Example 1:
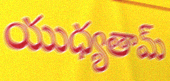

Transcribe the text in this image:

యుధ్యతామ్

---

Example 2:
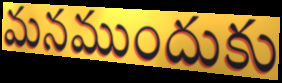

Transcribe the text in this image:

మనముందుకు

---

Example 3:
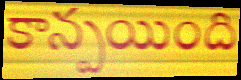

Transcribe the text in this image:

కాన్పయింది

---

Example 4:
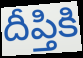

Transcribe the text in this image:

దీప్తికి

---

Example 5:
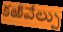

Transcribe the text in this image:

కఱివేల్పు